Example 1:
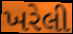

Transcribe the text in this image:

ખરેલી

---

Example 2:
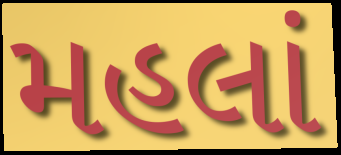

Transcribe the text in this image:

મહલાં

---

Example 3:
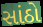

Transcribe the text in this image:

સાંઠો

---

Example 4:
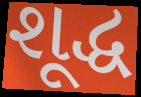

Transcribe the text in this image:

શૂદ્ધ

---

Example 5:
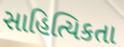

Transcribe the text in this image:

સાહિત્યિકતા